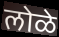
लोळे